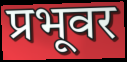
प्रभूवर